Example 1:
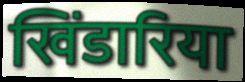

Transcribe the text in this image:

खिंडारिया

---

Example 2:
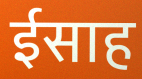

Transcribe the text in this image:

ईसाह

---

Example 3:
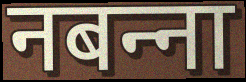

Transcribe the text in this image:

नबन्ना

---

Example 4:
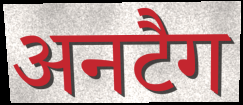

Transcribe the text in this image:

अनटैग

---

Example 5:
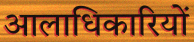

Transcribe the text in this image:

आलाधिकारियों